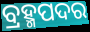
ବ୍ରହ୍ମପଦର